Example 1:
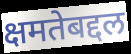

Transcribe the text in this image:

क्षमतेबद्दल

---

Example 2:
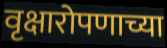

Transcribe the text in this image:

वृक्षारोपणाच्या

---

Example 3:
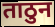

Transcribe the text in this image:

ताठुन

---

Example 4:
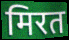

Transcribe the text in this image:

मिरत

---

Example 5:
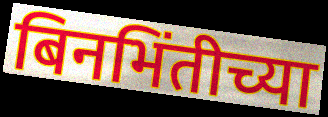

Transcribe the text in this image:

बिनभिंतीच्या